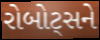
રોબોટ્સને